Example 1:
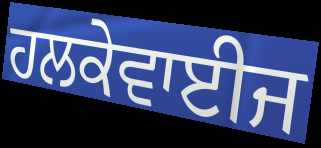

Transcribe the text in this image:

ਹਲਕੇਵਾਈਜ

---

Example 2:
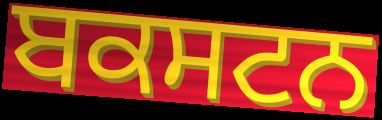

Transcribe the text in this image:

ਬਕਸਟਨ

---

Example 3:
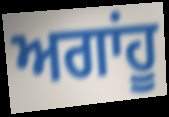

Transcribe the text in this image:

ਅਗਾਂਹੂ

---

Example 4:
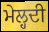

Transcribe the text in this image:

ਮੇਲ੍ਹਦੀ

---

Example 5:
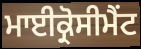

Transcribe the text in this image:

ਮਾਈਕ੍ਰੋਸੀਮੈਂਟ